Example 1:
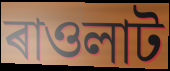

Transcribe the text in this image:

ৰাওলাট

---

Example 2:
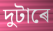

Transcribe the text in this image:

দুটাৰে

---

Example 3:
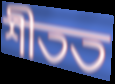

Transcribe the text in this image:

শীতত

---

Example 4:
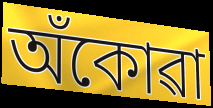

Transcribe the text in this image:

অঁকোৱা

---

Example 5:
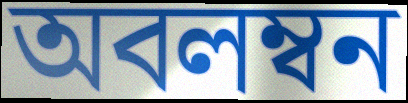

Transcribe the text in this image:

অবলম্বন